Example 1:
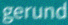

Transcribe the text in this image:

gerund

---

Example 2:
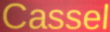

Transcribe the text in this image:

Cassel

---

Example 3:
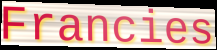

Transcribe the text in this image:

Francies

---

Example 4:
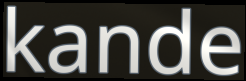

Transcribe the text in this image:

kande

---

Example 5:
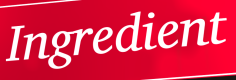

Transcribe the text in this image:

Ingredient